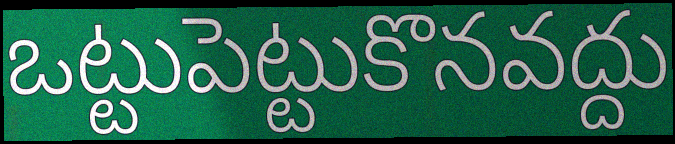
ఒట్టుపెట్టుకొనవద్దు